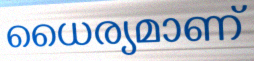
ധൈര്യമാണ്